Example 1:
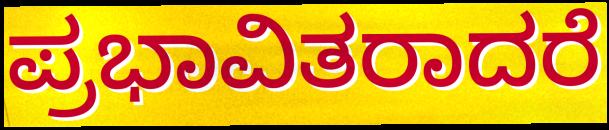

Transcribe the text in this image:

ಪ್ರಭಾವಿತರಾದರೆ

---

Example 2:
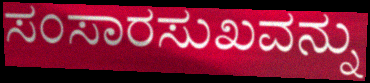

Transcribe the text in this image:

ಸಂಸಾರಸುಖವನ್ನು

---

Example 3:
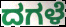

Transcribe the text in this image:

ದಗಳೆ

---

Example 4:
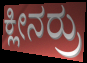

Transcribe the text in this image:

ಕ್ಲೀನರ್ರು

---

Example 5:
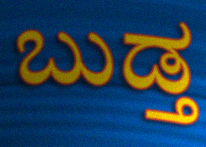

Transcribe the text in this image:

ಬುಡ್ತ